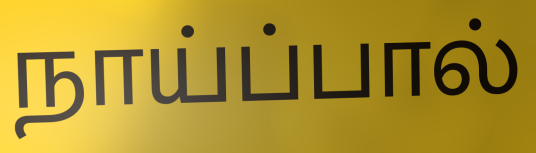
நாய்ப்பால்